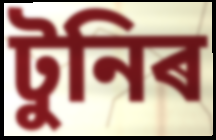
টুনিৰ